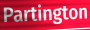
Partington